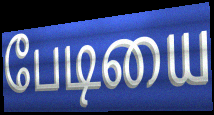
பேடியை